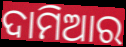
ଦାମିଆର